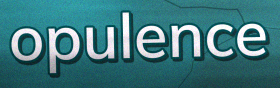
opulence